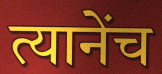
त्यानेंच